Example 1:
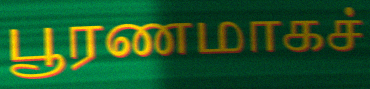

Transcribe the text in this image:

பூரணமாகச்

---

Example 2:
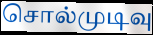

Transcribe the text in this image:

சொல்முடிவு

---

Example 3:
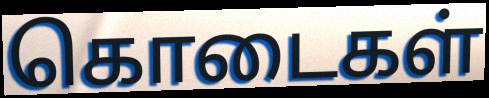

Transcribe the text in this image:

கொடைகள்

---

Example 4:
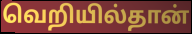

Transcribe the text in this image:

வெறியில்தான்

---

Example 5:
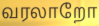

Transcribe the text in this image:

வரலாறோ